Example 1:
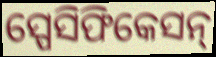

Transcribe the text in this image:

ସ୍ପେସିଫିକେସନ୍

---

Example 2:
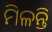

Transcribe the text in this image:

ମିଳନ୍ତି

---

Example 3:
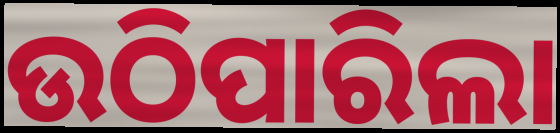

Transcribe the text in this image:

ଉଠିପାରିଲା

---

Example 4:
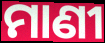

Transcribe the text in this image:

ମାଣୀ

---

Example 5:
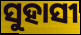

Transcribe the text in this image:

ସୁହାସୀ